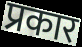
प्रकार